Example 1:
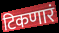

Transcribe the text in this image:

टिकणारं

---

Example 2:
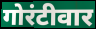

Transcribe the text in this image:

गोरंटीवार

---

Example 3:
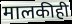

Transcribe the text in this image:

मालकीही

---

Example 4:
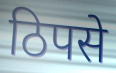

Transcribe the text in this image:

ठिपसे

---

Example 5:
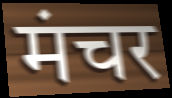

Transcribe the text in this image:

मंचर